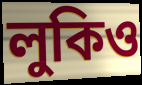
লুকিও